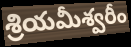
శ్రియమీశ్వరీం